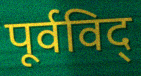
पूर्वविद्